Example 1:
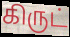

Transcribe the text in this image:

கிருட்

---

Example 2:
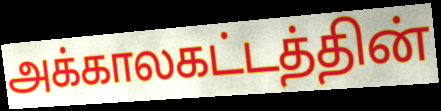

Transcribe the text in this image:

அக்காலகட்டத்தின்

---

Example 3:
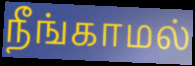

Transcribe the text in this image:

நீங்காமல்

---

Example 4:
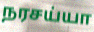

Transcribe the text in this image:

நரசய்யா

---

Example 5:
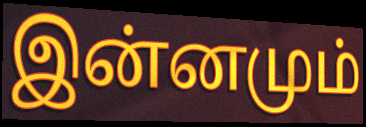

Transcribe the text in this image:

இன்னமும்